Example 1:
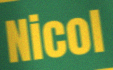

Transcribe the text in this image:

Nicol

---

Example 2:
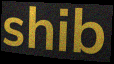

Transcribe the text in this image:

shib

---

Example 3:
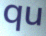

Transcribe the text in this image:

qu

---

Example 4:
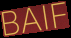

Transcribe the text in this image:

BAIF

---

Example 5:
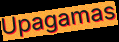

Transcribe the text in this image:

Upagamas